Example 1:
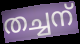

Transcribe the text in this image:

തച്ചന്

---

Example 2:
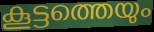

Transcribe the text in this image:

കൂട്ടത്തെയും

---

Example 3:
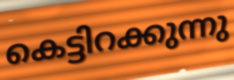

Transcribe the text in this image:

കെട്ടിറക്കുന്നു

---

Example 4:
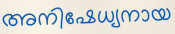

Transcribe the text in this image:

അനിഷേധ്യനായ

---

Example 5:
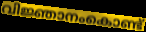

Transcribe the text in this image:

വിജ്ഞാനംകൊണ്ട്